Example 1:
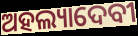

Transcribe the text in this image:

ଅହଲ୍ୟାଦେବୀ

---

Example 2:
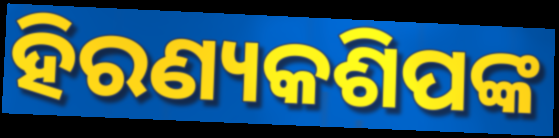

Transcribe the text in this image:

ହିରଣ୍ୟକଶିପଙ୍କ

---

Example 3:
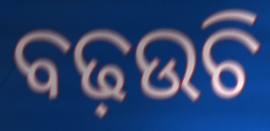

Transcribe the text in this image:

ବଢ଼ଉଚି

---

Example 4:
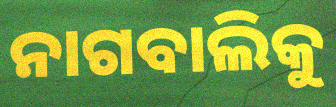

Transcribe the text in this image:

ନାଗବାଲିକୁ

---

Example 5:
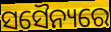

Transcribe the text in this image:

ସସୈନ୍ୟରେ